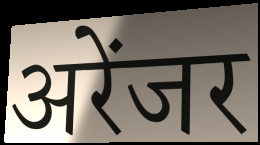
अरेंजर